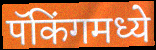
पॅकिंगमध्ये